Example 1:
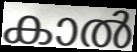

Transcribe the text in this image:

കാൽ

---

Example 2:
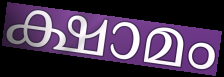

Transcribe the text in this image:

ക്ഷാമം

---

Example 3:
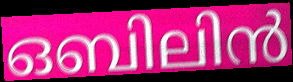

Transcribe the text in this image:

ഒബിലിൻ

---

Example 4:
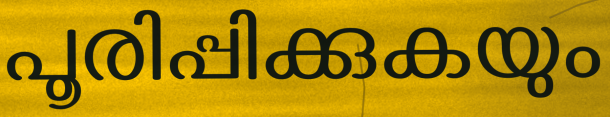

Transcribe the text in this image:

പൂരിപ്പിക്കുകയും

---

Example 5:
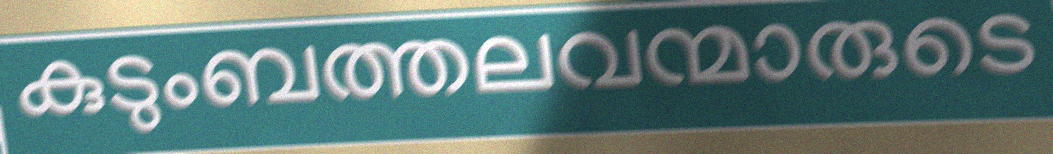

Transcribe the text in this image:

കുടുംബത്തലവന്മാരുടെ